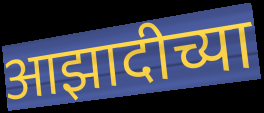
आझादीच्या